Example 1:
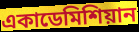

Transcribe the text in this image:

একাডেমিশিয়ান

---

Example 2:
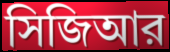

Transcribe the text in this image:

সিজিআর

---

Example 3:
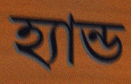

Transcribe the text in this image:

হ্যান্ড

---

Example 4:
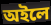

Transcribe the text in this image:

অইলে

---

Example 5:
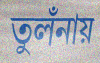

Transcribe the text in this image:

তুলঁনায়